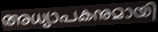
അധ്യാപകനുമായി